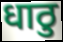
धाठु